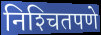
निश्चितपणे